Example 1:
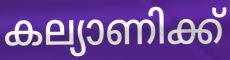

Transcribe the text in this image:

കല്യാണിക്ക്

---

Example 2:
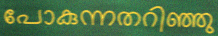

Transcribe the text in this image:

പോകുന്നതറിഞ്ഞു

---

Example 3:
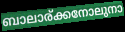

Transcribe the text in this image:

ബാലാര്ക്കനോലുനാ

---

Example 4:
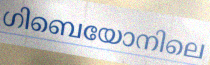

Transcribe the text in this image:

ഗിബെയോനിലെ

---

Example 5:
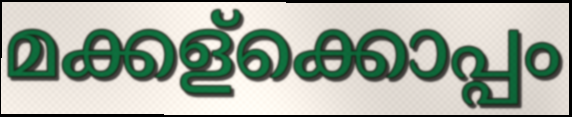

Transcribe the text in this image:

മക്കള്ക്കൊപ്പം